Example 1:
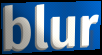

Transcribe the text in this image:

blur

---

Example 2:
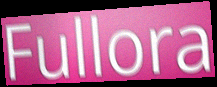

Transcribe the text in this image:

Fullora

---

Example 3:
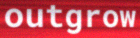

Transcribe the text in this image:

outgrow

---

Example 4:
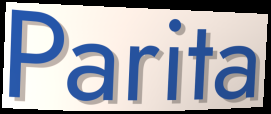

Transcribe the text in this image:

Parita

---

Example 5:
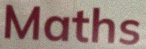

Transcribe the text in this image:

Maths